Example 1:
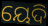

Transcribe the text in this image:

ୟେଦି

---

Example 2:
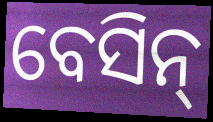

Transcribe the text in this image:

ବେସିନ୍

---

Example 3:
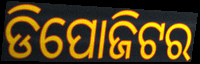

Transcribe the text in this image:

ଡିପୋଜିଟର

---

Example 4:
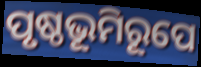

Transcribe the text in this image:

ପୃଷ୍ଠଭୂମିରୂପେ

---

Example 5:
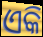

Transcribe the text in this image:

ଏକି